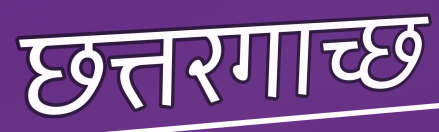
छत्तरगाच्छ